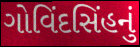
ગોવિંદસિંહનું